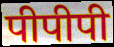
पीपीपी